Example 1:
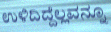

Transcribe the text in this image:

ಉಳಿದಿದ್ದೆಲ್ಲವನ್ನೂ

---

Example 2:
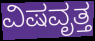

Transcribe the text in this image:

ವಿಷವೃತ್ತ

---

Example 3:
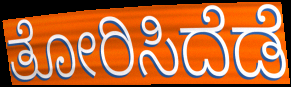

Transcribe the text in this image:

ತೋರಿಸಿದೆಡೆ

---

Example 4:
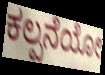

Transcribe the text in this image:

ಕಲ್ಪನೆಯೋ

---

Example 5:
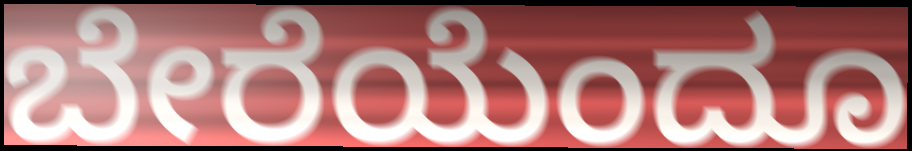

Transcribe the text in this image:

ಬೇರೆಯೆಂದೂ